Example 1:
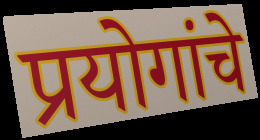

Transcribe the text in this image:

प्रयोगांचे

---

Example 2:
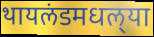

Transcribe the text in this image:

थायलंडमधल्या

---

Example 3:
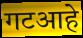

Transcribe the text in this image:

गटआहे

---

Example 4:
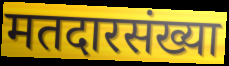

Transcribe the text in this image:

मतदारसंख्या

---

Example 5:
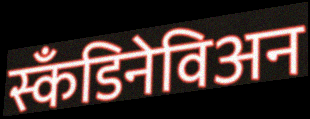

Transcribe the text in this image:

स्कॅंडिनेविअन